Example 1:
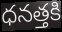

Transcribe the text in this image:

ధనత్తకి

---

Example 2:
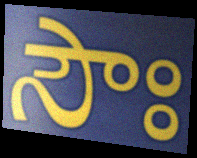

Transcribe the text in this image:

సౌః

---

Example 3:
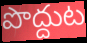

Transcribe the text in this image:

పొద్దుట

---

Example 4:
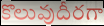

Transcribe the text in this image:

కొలువుదీరగా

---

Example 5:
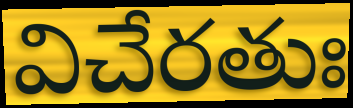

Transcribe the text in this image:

విచేరతుః